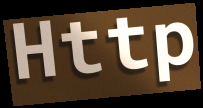
Http